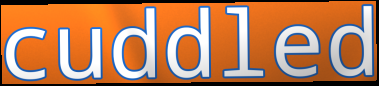
cuddled